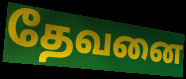
தேவனை